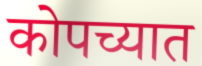
कोपच्यात